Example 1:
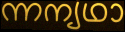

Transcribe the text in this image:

ന്നന്യഥാ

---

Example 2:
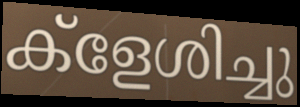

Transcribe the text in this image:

ക്ളേശിച്ചു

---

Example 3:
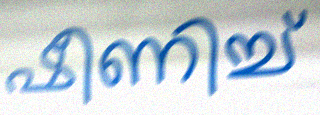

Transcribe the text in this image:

ഷീണിച്ച്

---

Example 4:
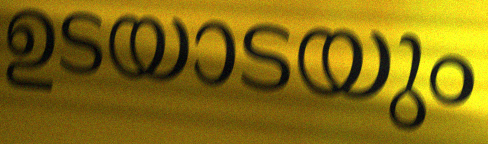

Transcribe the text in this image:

ഉടയാടയും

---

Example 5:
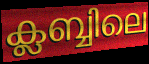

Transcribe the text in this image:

ക്ലബ്ബിലെ